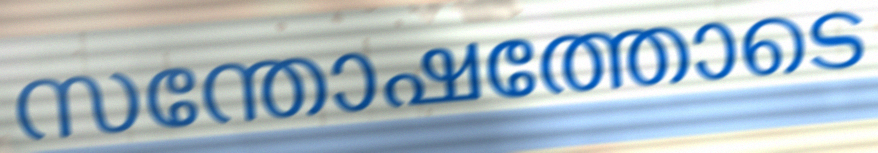
സന്തോഷത്തോടെ